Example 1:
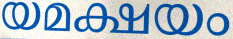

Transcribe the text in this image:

യമക്ഷയം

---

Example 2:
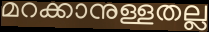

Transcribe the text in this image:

മറക്കാനുള്ളതല്ല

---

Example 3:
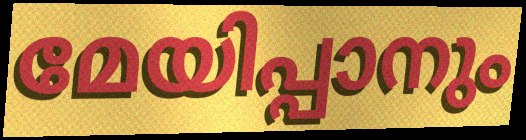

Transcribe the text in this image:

മേയിപ്പാനും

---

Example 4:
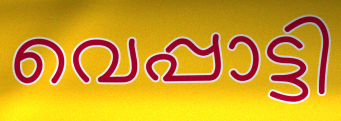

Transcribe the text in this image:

വെപ്പാട്ടി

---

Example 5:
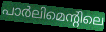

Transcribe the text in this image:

പാർലിമെന്റിലെ